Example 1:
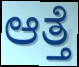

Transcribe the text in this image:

ಆತ್ತೆ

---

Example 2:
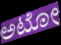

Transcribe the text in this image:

ಅಟೋ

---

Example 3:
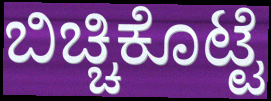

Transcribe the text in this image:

ಬಿಚ್ಚಿಕೊಟ್ಟೆ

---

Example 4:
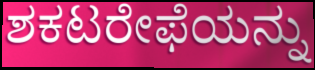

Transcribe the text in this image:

ಶಕಟರೇಫೆಯನ್ನು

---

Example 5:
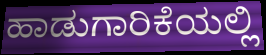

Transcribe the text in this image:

ಹಾಡುಗಾರಿಕೆಯಲ್ಲಿ